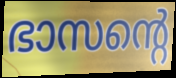
ഭാസന്റെ